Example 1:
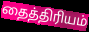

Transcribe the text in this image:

தைத்திரியம்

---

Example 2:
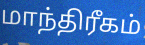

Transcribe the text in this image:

மாந்திரீகம்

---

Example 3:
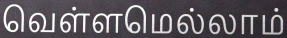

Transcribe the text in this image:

வெள்ளமெல்லாம்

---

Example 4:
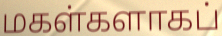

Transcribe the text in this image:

மகள்களாகப்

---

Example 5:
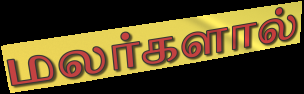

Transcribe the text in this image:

மலர்களால்